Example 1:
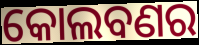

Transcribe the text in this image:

କୋଲବଣର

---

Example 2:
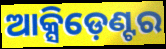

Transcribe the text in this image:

ଆକ୍ସିଡ଼େଣ୍ଟର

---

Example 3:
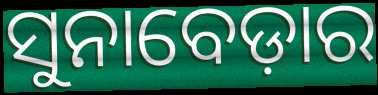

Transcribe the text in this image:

ସୁନାବେଡ଼ାର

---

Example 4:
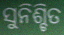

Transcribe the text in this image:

ସୁନିଶ୍ଚିତ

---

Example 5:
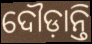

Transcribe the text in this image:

ଦୌଡ଼ାନ୍ତି